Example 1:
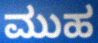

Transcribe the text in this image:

ಮುಹ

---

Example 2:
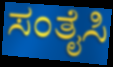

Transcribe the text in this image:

ಸಂತೈಸಿ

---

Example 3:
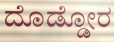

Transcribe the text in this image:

ದೊಡ್ಡೋರ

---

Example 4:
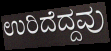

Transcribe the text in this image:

ಉರಿದೆದ್ದವು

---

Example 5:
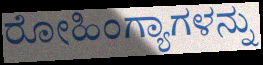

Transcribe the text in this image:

ರೋಹಿಂಗ್ಯಾಗಳನ್ನು